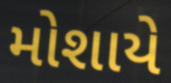
મોશાયે